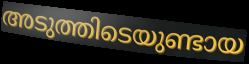
അടുത്തിടെയുണ്ടായ